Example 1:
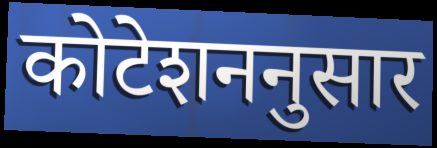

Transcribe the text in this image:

कोटेशननुसार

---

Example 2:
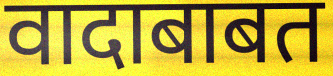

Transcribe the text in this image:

वादाबाबत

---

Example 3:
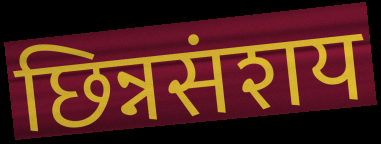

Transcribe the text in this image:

छिन्नसंशय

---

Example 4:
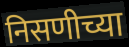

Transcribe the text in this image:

निसणीच्या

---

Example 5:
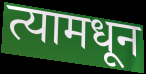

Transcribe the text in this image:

त्यामधून